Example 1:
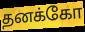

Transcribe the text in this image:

தனக்கோ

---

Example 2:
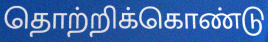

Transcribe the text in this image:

தொற்றிக்கொண்டு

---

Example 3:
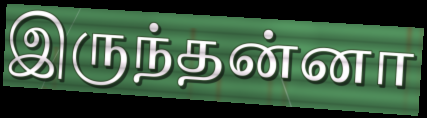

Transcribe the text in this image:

இருந்தன்னா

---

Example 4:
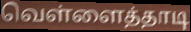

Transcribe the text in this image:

வெள்ளைத்தாடி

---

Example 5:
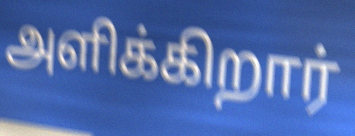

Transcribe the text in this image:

அளிக்கிறார்